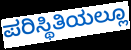
ಪರಿಸ್ಥಿತಿಯಲ್ಲೂ